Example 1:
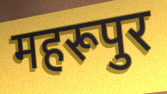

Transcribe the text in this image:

महरूपुर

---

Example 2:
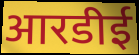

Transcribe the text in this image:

आरडीई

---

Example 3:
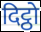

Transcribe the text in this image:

दिट्ठो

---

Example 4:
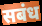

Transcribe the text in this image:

सबंध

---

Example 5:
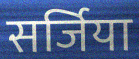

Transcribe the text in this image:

सर्जिया